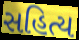
સહિત્ય